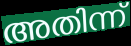
അതിന്ന്